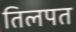
तिलपत